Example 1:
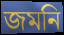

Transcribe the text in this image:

জমনি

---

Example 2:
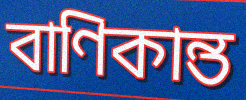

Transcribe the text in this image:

বাণিকান্ত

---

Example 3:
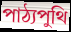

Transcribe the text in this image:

পাঠ্যপুথি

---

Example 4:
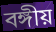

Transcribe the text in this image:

বঙ্গীয়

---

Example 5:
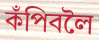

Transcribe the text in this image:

কঁপিবলৈ